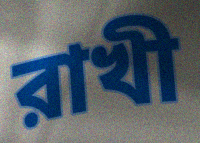
রাখী